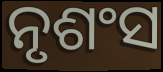
ନୃଶଂସ